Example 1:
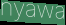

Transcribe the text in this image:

nyawa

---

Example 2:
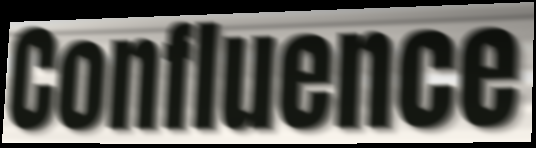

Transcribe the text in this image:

Confluence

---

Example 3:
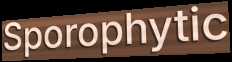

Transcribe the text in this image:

Sporophytic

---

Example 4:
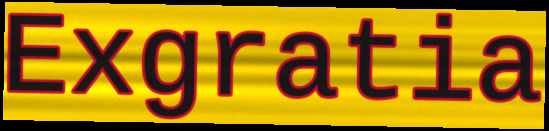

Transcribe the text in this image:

Exgratia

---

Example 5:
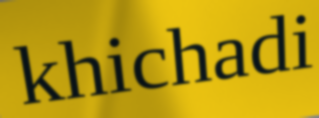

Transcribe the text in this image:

khichadi